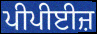
ਪੀਪੀਈਜ਼